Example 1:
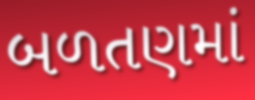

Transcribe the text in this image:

બળતણમાં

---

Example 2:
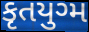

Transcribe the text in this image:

કૃતયુગ્મ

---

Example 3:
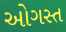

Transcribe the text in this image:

ઓગસ્ત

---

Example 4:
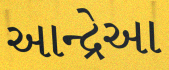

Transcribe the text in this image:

આન્દ્રેઆ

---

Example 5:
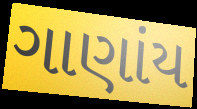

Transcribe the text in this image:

ગાણાંય